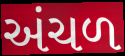
અંચળ